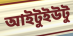
আইটুইউটু